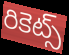
రికెట్స్